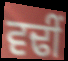
ਵਢੀਂ